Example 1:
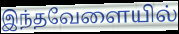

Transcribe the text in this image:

இந்தவேளையில்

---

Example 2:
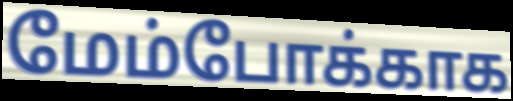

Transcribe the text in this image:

மேம்போக்காக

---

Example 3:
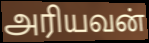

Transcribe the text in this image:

அரியவன்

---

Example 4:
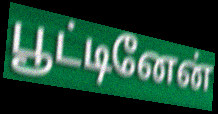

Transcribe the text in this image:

பூட்டினேன்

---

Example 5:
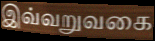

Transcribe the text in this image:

இவ்வறுவகை